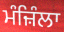
ਮੰਜ਼ਿੰਲਾ